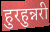
हुरहुन्नरी